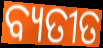
ବ୍ଯତୀତ